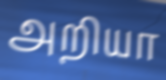
அறியா